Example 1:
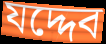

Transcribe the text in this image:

যদ্দেব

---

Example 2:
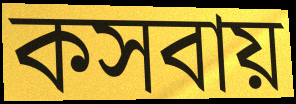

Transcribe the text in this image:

কসবায়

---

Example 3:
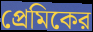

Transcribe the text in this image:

প্রেমিকের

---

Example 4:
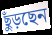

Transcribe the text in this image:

ছুঁড়ছেন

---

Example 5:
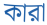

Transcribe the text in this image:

কারা